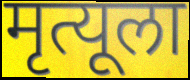
मृत्यूला